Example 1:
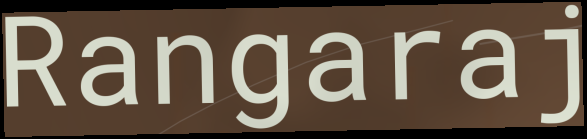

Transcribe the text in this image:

Rangaraj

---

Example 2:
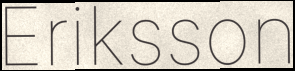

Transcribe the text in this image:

Eriksson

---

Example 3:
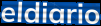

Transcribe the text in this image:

eldiario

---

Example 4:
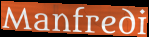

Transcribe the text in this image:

Manfredi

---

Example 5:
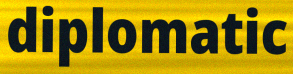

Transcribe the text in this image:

diplomatic